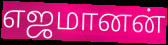
எஜமானன்